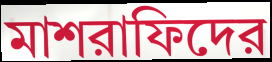
মাশরাফিদের